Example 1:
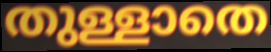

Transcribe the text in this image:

തുള്ളാതെ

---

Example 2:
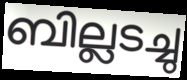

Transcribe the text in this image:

ബില്ലടച്ചു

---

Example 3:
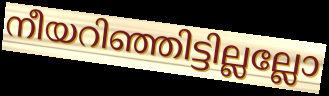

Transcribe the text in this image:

നീയറിഞ്ഞിട്ടില്ലല്ലോ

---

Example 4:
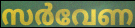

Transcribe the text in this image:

സർവേണ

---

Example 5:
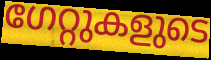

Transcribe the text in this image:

ഗേറ്റുകളുടെ